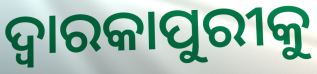
ଦ୍ୱାରକାପୁରୀକୁ